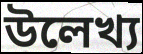
উলেখ্য